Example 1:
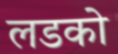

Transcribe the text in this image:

लडको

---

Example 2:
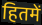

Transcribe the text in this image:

हितमें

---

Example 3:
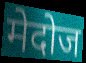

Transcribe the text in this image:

मेदोज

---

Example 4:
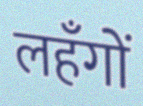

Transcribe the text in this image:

लहँगों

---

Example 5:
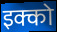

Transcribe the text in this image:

इक्को